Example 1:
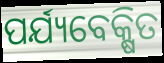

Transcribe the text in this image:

ପର୍ଯ୍ୟବେକ୍ଷିତ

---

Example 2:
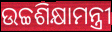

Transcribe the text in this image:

ଉଚ୍ଚଶିକ୍ଷାମନ୍ତ୍ରୀ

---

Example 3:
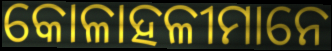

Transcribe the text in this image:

କୋଳାହଳୀମାନେ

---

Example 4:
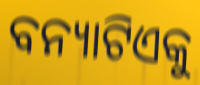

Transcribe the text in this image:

ବନ୍ୟାଟିଏକୁ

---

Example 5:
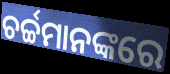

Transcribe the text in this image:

ଚର୍ଚ୍ଚମାନଙ୍କରେ